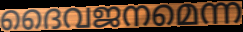
ദൈവജനമെന്ന